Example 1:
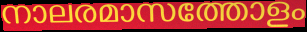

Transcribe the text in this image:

നാലരമാസത്തോളം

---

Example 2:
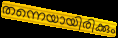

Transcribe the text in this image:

തന്നെയായിരിക്കും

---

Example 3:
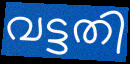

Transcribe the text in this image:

വട്ടതി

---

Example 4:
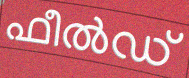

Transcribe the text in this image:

ഫീൽഡ്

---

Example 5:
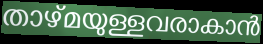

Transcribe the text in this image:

താഴ്മയുള്ളവരാകാൻ